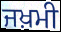
ਜਖ਼ਮੀ